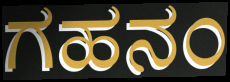
ಗಹನಂ